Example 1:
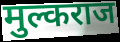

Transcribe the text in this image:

मुल्कराज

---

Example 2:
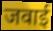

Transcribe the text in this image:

जवाई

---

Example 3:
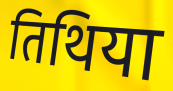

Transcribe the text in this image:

तिथिया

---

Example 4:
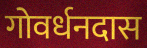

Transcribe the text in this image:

गोवर्धनदास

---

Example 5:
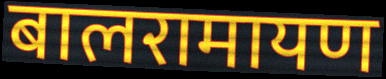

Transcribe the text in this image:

बालरामायण